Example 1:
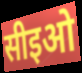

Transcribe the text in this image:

सीइओ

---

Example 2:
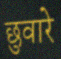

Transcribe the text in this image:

छुवारे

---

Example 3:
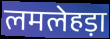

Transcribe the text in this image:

लमलेहड़ा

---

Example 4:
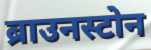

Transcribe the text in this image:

ब्राउनस्टोन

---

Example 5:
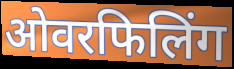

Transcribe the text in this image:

ओवरफिलिंग